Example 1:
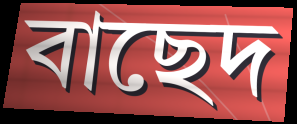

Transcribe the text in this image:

বাছেদ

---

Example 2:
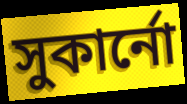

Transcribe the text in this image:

সুকার্নো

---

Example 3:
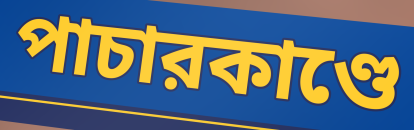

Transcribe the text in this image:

পাচারকাণ্ডে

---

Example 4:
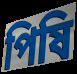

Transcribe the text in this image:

পিষি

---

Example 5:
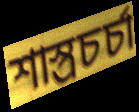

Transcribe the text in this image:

শাস্ত্রচর্চা